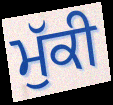
ਮੁੱਕੀ